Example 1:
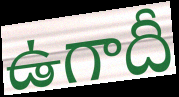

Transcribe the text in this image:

ఉగాదీ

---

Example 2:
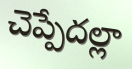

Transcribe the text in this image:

చెప్పేదల్లా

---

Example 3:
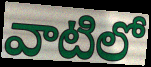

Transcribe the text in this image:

వాటిలో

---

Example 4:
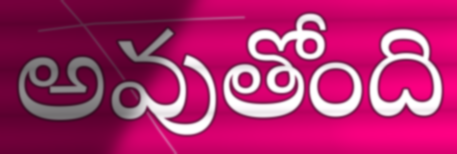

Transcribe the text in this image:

అవుతోంది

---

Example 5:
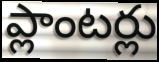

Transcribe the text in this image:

ప్లాంటర్లు